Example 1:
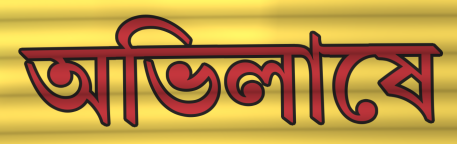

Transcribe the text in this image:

অভিলাষে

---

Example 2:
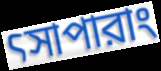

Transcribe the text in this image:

ৎসাপারাং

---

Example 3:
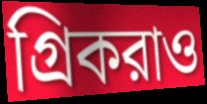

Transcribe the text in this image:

গ্রিকরাও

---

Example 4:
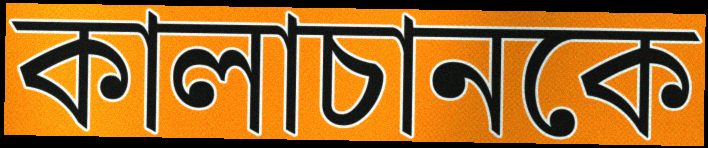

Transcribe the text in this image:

কালাচানকে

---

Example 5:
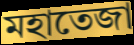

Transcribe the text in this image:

মহাতেজা